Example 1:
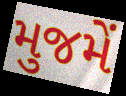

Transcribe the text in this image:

મુજમેં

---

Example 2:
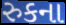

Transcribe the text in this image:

રુકના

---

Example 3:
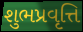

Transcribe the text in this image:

શુભપ્રવૃત્તિ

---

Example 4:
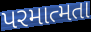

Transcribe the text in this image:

પરમાત્મતા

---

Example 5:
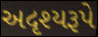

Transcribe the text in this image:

અદૃશ્યરૂપે